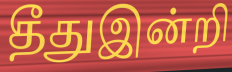
தீதுஇன்றி